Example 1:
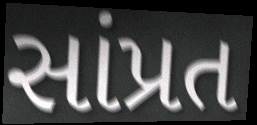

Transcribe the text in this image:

સાંપ્રત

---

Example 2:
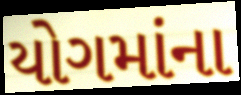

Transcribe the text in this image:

યોગમાંના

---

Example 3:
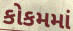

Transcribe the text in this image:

કોકમમાં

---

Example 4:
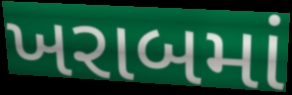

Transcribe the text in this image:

ખરાબમાં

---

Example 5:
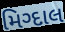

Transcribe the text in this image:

મિગ્દાલ